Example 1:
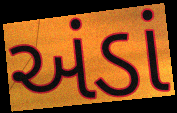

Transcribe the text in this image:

અંડાં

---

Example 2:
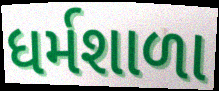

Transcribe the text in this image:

ધર્મશાળા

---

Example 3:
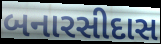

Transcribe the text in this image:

બનારસીદાસ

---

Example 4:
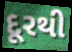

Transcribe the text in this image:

દૂરથી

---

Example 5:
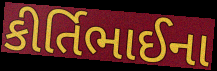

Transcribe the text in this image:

કીર્તિભાઈના